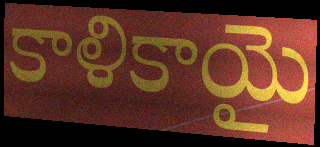
కాళికాయై